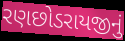
રણછોડરાયજીનું